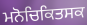
ਮਨੋਚਿਕਿਤਸਕ